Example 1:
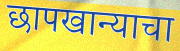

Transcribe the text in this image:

छापखान्याचा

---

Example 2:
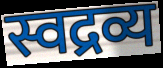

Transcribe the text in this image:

स्वद्रव्य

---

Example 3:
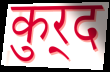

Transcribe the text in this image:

कुर्द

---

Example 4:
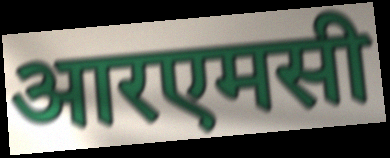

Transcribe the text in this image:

आरएमसी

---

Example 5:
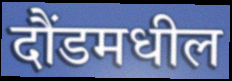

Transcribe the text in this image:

दौंडमधील